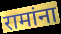
रामांना